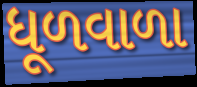
ધૂળવાળા